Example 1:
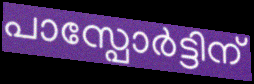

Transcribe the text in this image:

പാസ്പോർട്ടിന്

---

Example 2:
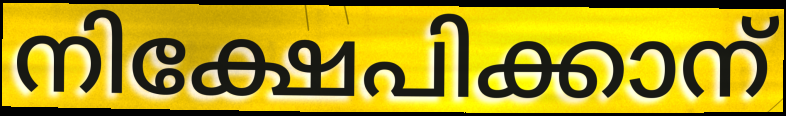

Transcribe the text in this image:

നിക്ഷേപിക്കാന്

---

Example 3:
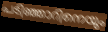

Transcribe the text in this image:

പടിഞ്ഞാറിനെയും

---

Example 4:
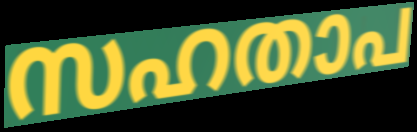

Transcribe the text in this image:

സഹതാപ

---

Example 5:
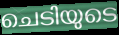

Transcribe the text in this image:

ചെടിയുടെ